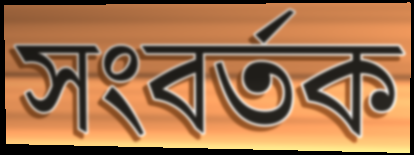
সংবর্তক